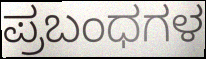
ಪ್ರಬಂಧಗಳ